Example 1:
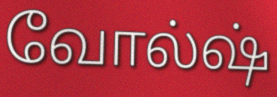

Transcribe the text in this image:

வோல்ஷ்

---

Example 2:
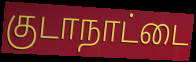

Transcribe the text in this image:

குடாநாட்டை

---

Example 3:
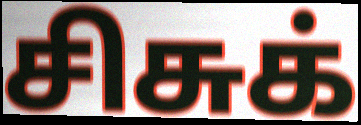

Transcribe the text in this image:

சிசுக்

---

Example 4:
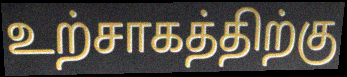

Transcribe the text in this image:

உற்சாகத்திற்கு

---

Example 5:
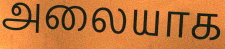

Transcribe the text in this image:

அலையாக